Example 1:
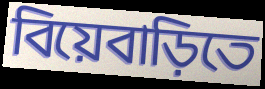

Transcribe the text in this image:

বিয়েবাড়িতে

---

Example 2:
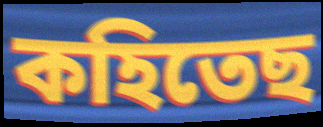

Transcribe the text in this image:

কহিতেছ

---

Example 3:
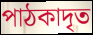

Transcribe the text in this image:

পাঠকাদৃত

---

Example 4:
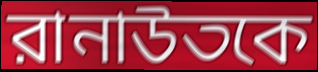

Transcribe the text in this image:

রানাউতকে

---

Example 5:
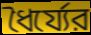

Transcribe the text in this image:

ধৈর্য্যের